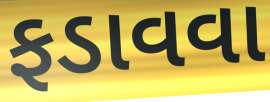
ફડાવવા